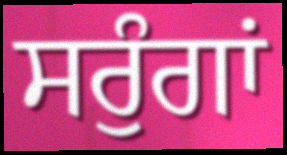
ਸਰੁੰਗਾਂ